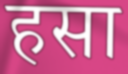
हसा